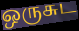
ஒருசுட